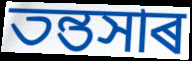
তন্তসাৰ